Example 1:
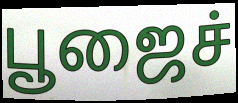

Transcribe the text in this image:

பூஜைச்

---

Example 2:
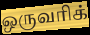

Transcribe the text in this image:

ஒருவரிக்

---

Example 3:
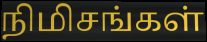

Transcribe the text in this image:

நிமிசங்கள்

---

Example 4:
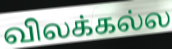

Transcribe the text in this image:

விலக்கல்ல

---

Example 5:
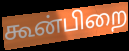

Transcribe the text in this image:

கூன்பிறை